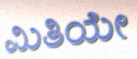
ಮಿತಿಯೇ